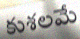
కుశలమే